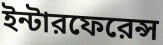
ইন্টারফেরেন্স